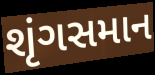
શૃંગસમાન